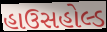
હાઉસહોલ્ડ